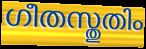
ഗീതസ്തുതിം